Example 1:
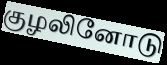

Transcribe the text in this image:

குழலினோடு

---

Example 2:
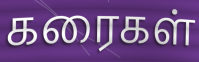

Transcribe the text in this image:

கரைகள்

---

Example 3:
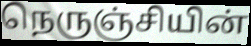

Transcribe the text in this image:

நெருஞ்சியின்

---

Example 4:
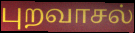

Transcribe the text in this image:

புறவாசல்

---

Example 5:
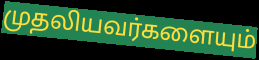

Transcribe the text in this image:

முதலியவர்களையும்